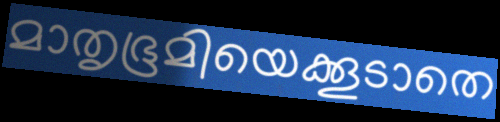
മാതൃഭൂമിയെക്കൂടാതെ